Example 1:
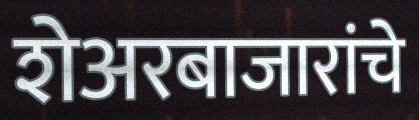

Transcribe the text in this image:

शेअरबाजारांचे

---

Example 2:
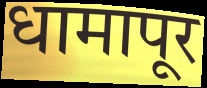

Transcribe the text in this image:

धामापूर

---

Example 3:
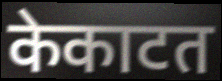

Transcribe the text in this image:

केकाटत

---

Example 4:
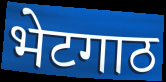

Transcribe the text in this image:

भेटगाठ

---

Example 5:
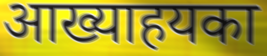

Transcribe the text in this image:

आख्याहयका